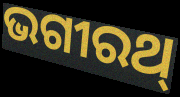
ଭଗୀରଥ୍